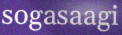
sogasaagi